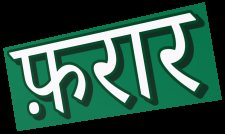
फ़रार